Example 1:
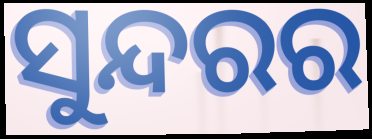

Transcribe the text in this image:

ସୁନ୍ଦରର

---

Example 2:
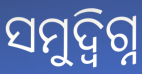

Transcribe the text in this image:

ସମୁଦ୍ବିଗ୍ନ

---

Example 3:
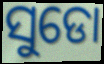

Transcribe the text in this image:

ସୁଡୋ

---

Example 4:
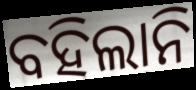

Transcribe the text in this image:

ବହିଲାନି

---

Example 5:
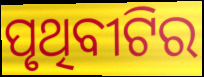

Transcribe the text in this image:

ପୃଥିବୀଟିର